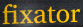
fixator